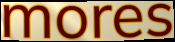
mores